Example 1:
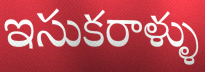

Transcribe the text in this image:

ఇసుకరాళ్ళు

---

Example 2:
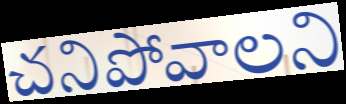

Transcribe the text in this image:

చనిపోవాలని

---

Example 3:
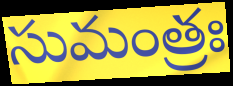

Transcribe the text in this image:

సుమంత్రః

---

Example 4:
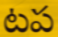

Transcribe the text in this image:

టప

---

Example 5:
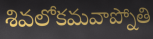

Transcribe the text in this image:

శివలోకమవాప్నోతి